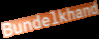
Bundelkhand